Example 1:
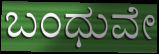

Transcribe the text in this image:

ಬಂಧುವೇ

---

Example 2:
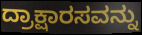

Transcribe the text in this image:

ದ್ರಾಕ್ಷಾರಸವನ್ನು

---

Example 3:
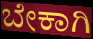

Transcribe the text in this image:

ಬೇಕಾಗಿ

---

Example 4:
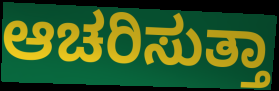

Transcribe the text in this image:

ಆಚರಿಸುತ್ತಾ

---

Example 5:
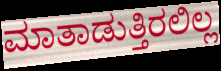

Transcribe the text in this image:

ಮಾತಾಡುತ್ತಿರಲಿಲ್ಲ